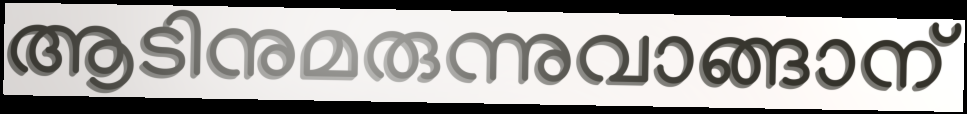
ആടിനുമരുന്നുവാങ്ങാന്